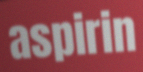
aspirin